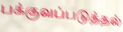
பக்குவப்படுத்தல்